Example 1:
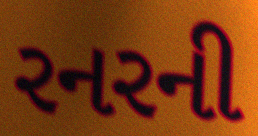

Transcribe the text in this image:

રનરની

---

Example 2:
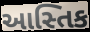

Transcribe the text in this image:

આસ્તિક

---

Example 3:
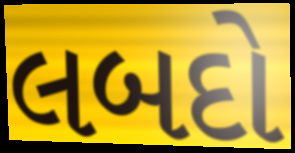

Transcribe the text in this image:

લબદો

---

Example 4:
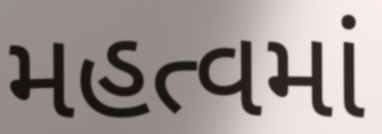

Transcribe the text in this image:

મહત્વમાં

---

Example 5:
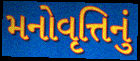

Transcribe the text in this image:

મનોવૃત્તિનું